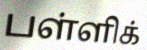
பள்ளிக்